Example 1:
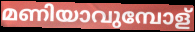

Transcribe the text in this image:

മണിയാവുമ്പോള്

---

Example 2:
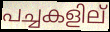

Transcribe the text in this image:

പച്ചകളില്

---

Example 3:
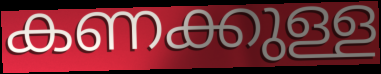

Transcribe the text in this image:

കണക്കുള്ള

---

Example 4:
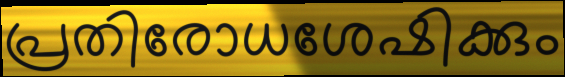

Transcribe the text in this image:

പ്രതിരോധശേഷിക്കും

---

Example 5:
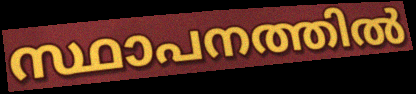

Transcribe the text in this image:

സ്ഥാപനത്തിൽ